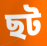
ছট